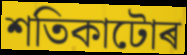
শতিকাটোৰ